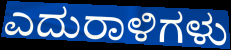
ಎದುರಾಳಿಗಳು